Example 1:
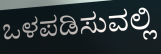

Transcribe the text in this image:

ಒಳಪಡಿಸುವಲ್ಲಿ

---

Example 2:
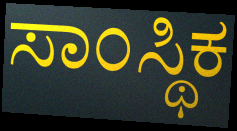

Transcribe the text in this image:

ಸಾಂಸ್ಥಿಕ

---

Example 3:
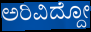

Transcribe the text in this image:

ಅರಿವಿದ್ದೋ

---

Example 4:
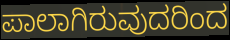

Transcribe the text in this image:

ಪಾಲಾಗಿರುವುದರಿಂದ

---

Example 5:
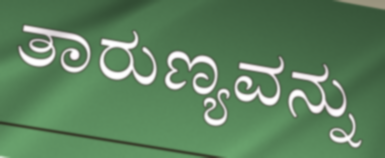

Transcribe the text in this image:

ತಾರುಣ್ಯವನ್ನು